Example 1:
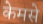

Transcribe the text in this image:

केमसे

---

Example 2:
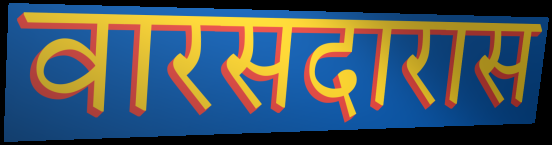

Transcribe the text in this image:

वारसदारास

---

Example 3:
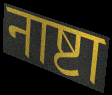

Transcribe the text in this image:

नाष्टा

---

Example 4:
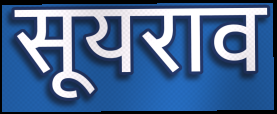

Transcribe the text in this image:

सूयराव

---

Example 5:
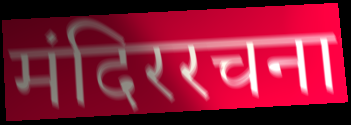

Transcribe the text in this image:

मंदिररचना